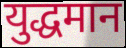
युद्धमान